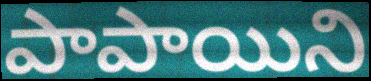
పాపాయిని